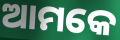
ଆମକେ